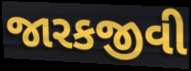
જારકજીવી